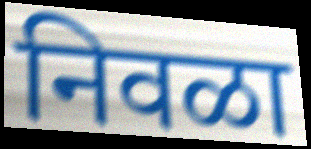
निवळा